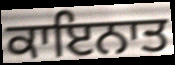
ਕਾਇਨਾਤ